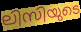
ലിസിയുടെ